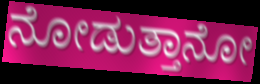
ನೋಡುತ್ತಾನೋ